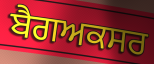
ਬੈਗਅਕਸਰ